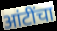
आंटींचा